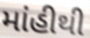
માંહીથી